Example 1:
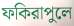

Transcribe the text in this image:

ফকিরাপুলে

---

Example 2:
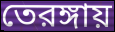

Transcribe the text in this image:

তেরঙ্গায়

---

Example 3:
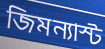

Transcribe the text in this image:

জিমন্যাস্ট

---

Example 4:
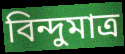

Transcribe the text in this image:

বিন্দুমাত্র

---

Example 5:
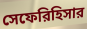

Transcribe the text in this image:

সেফেরিহিসার